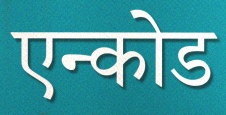
एन्कोड